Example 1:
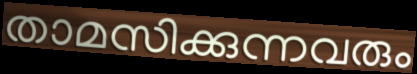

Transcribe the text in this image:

താമസിക്കുന്നവരും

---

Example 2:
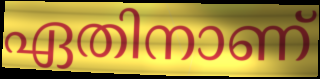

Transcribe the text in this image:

ഏതിനാണ്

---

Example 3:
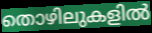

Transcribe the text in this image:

തൊഴിലുകളിൽ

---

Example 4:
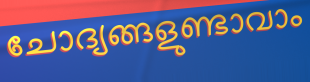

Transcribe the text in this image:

ചോദ്യങ്ങളുണ്ടാവാം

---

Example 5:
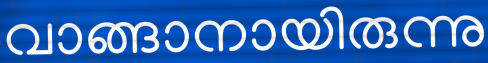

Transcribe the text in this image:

വാങ്ങാനായിരുന്നു